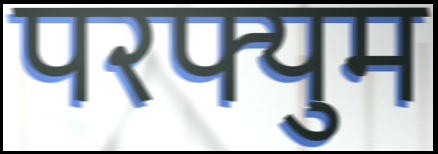
परफ्युम